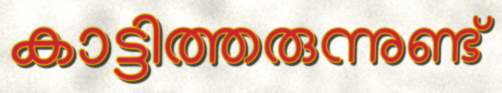
കാട്ടിത്തരുന്നുണ്ട്